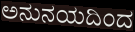
ಅನುನಯದಿಂದ